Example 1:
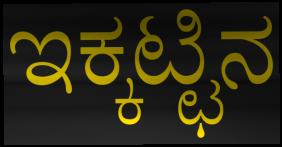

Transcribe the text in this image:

ಇಕ್ಕಟ್ಟಿನ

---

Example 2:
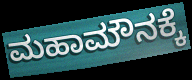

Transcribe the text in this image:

ಮಹಾಮೌನಕ್ಕೆ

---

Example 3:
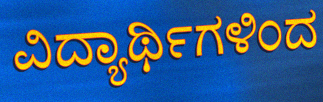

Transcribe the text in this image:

ವಿದ್ಯಾರ್ಥಿಗಳಿಂದ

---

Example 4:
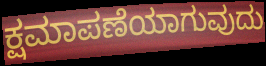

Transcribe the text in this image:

ಕ್ಷಮಾಪಣೆಯಾಗುವುದು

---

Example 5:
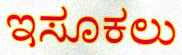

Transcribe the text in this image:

ಇಸೂಕಲು